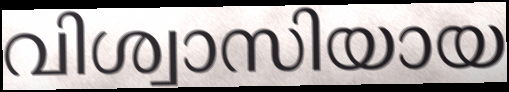
വിശ്വാസിയായ